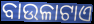
ବାଉଳାଟାଏ